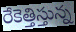
రేకెత్తిస్తున్న